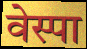
वेस्पा